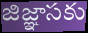
జిజ్ఞాసకు